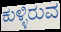
ಕುಳ್ಳಿರುವ